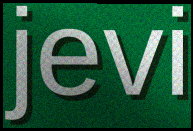
jevi